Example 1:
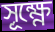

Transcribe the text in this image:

সূক্ষ্ণে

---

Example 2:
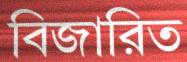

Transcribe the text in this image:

বিজারিত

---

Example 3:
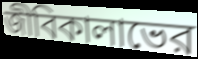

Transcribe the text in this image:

জীবিকালাভের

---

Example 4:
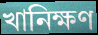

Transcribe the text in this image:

খানিক্ষণ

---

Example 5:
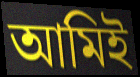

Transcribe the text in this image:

আমিই